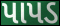
પાપડ